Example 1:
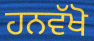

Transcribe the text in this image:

ਹਨਵੱਖੋ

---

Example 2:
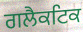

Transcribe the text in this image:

ਗਲੈਕਟਿਕ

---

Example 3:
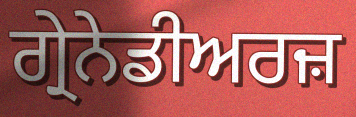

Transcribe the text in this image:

ਗ੍ਰੇਨੇਡੀਅਰਜ਼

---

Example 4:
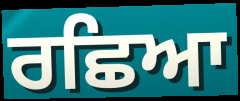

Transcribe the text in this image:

ਰਛਿਆ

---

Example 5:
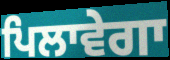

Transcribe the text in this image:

ਪਿਲਾਵੇਗਾ